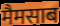
मैमसाब